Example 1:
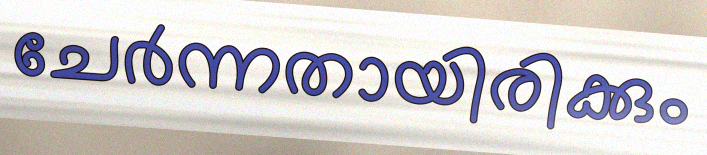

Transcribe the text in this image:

ചേർന്നതായിരിക്കും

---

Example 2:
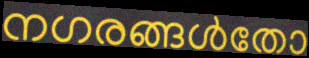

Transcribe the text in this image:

നഗരങ്ങൾതോ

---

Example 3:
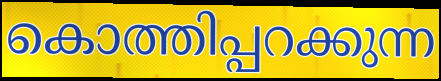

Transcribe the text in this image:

കൊത്തിപ്പറക്കുന്ന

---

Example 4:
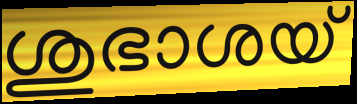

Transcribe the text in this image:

ശുഭാശയ്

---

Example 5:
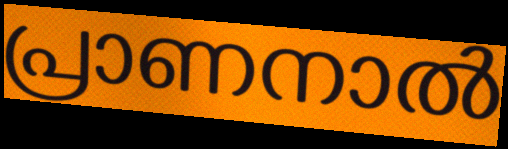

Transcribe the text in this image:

പ്രാണനാൽ